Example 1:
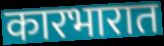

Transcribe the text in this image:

कारभारात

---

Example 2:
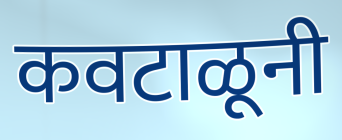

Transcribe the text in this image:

कवटाळूनी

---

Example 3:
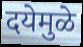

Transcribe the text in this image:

दयेमुळे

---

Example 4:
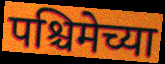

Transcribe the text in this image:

पश्चिमेच्या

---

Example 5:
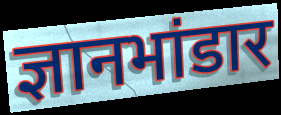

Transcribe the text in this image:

ज्ञानभांडार